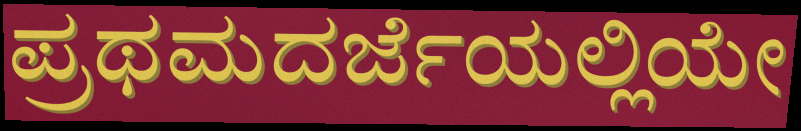
ಪ್ರಥಮದರ್ಜೆಯಲ್ಲಿಯೇ